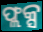
ଫ୍ଲକ୍ସ